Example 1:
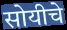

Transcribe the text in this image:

सोयीचे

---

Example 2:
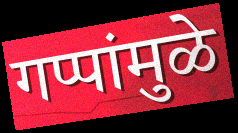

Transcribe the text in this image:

गप्पांमुळे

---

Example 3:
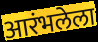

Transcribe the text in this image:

आरंभलेला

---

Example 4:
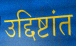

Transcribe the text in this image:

उद्दिष्टांत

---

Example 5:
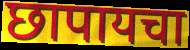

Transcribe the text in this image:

छापायचा